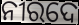
ନୀରଦେ